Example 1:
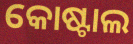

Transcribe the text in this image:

କୋଷ୍ଟାଲ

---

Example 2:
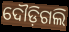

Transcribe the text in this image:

ଦୌଡ଼ିଗଲି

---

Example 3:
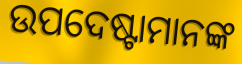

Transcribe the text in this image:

ଉପଦେଷ୍ଟାମାନଙ୍କ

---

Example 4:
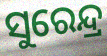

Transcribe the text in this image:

ସୁରେନ୍ଦ୍ର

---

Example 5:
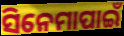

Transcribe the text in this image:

ସିନେମାପାଇଁ